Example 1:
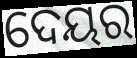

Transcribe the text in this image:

ଦେୟର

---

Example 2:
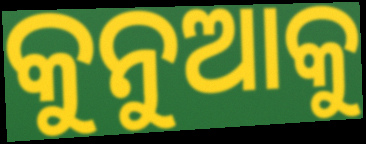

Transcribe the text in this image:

କୁନୁଆକୁ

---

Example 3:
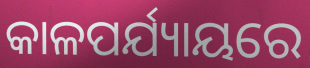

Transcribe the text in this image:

କାଳପର୍ଯ୍ୟାୟରେ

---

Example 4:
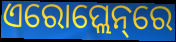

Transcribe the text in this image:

ଏରୋପ୍ଲେନ୍‌ରେ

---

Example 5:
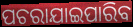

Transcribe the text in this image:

ପଚରାଯାଇପାରିବ